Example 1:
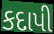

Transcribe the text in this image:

કદાપી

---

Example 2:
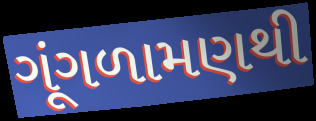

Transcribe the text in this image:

ગૂંગળામણથી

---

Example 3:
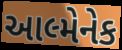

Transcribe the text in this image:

આલ્મેનેક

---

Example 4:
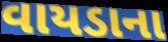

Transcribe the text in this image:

વાયડાના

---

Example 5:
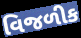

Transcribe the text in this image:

વિજળીક